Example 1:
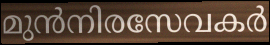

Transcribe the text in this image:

മുൻനിരസേവകർ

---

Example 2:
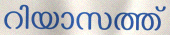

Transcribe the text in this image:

റിയാസത്ത്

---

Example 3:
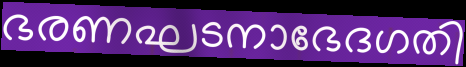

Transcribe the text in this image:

ഭരണഘടനാഭേദഗതി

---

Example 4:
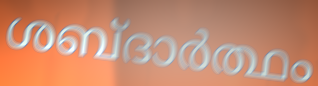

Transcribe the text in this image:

ശബ്ദാർത്ഥം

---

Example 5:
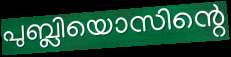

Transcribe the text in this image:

പുബ്ലിയൊസിന്റെ